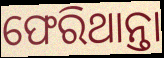
ଫେରିଥାନ୍ତା